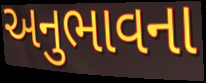
અનુભાવના